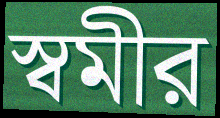
স্বমীর